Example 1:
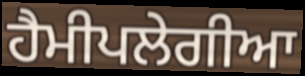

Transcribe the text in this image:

ਹੈਮੀਪਲੇਗੀਆ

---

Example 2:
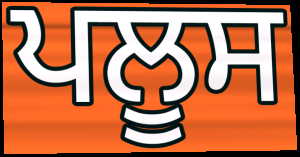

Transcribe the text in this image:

ਪਲੂਸ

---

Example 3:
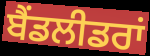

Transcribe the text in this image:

ਬੈਂਡਲੀਡਰਾਂ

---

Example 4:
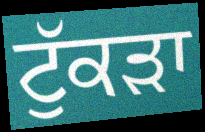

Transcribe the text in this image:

ਟੁੱਕੜਾ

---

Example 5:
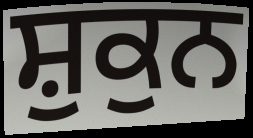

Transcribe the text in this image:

ਸ਼ੁਕੁਨ